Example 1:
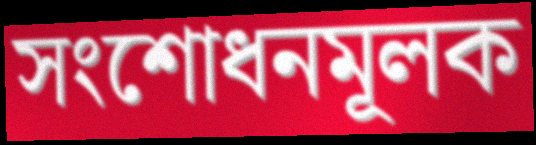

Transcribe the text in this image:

সংশোধনমূলক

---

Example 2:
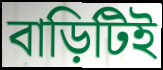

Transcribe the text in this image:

বাড়িটিই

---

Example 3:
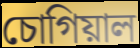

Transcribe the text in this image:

চোগিয়াল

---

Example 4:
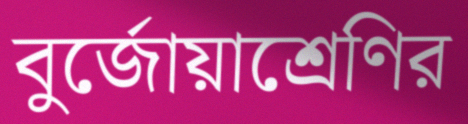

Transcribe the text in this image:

বুর্জোয়াশ্রেণির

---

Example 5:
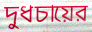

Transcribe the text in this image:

দুধচায়ের